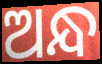
ଅନ୍ଧ